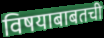
विषयाबाबतची